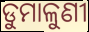
ଡୁମାଳୁଣୀ